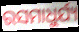
ରସମାଧୁର୍ଯ୍ୟ